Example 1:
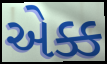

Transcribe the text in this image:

એક્ક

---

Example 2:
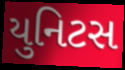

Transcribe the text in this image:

યુનિટસ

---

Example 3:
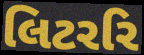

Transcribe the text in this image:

લિટરરિ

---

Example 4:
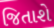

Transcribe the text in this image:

જિતાશે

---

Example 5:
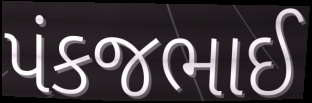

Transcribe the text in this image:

પંકજભાઈ